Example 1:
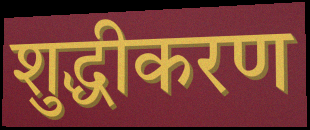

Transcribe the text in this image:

शुद्धीकरण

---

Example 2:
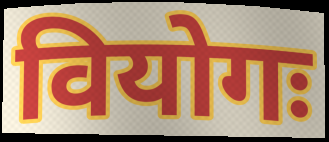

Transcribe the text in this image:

वियोगः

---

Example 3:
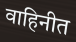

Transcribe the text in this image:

वाहिनीत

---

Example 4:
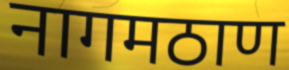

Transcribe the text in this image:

नागमठाण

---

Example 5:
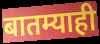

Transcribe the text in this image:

बातम्याही